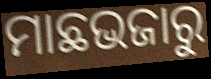
ମାଛଭଜାରୁ